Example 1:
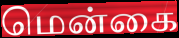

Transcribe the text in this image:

மென்கை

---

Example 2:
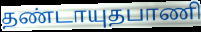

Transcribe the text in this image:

தண்டாயுதபாணி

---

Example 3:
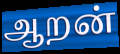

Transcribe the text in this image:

ஆறன்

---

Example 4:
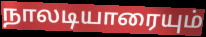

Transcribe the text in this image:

நாலடியாரையும்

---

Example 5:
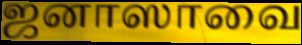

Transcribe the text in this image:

ஜனாஸாவை